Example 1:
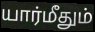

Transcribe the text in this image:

யார்மீதும்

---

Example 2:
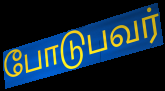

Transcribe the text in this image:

போடுபவர்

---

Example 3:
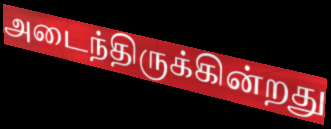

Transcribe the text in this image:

அடைந்திருக்கின்றது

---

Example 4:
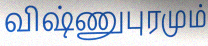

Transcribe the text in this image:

விஷ்ணுபுரமும்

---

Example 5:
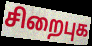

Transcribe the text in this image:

சிறைபுக